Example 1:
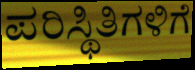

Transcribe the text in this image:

ಪರಿಸ್ಥಿತಿಗಳಿಗೆ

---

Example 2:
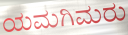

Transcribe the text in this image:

ಯಮಗಿಮರು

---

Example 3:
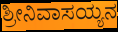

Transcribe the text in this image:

ಶ್ರೀನಿವಾಸಯ್ಯನ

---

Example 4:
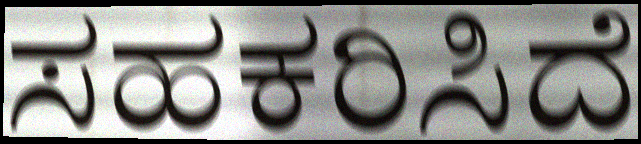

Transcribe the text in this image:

ಸಹಕರಿಸಿದೆ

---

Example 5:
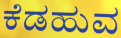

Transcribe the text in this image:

ಕೆಡಹುವ